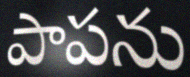
పాపను